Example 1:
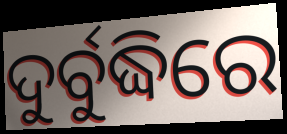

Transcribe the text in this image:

ଦୁର୍ବୁଦ୍ଧିରେ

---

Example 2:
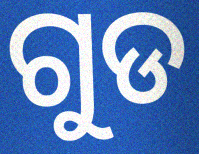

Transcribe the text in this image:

ଗୁଡ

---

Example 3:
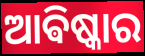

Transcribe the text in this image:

ଆଵିଷ୍କାର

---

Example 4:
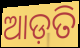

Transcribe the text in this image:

ଆଡ଼ତି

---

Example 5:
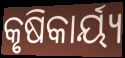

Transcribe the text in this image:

କୃଷିକାର୍ୟ୍ୟ